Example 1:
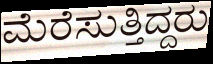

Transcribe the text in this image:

ಮೆರೆಸುತ್ತಿದ್ದರು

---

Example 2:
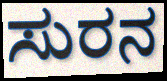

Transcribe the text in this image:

ಸುರನ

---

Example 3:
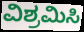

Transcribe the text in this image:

ವಿಶ್ರಮಿಸಿ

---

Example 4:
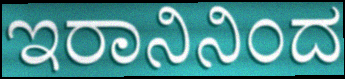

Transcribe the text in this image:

ಇರಾನಿನಿಂದ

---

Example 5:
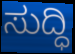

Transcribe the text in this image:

ಸುದ್ಧಿ